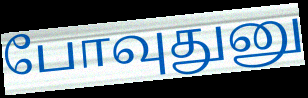
போவுதுனு